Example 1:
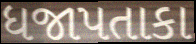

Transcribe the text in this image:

ધજાપતાકા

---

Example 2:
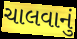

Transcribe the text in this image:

ચાલવાનું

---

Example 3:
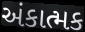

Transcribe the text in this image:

અંકાત્મક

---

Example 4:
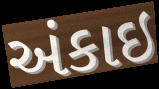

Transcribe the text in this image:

અંકાઇ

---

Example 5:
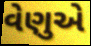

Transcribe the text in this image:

વેણુએ